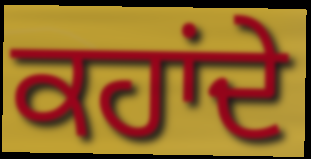
ਕਹਾਂਦੇ